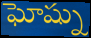
ఘోష్ను